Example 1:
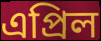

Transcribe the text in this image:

এপ্ৰিল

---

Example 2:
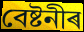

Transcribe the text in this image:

বেষ্টনীৰ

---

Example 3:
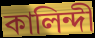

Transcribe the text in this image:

কালিন্দী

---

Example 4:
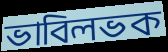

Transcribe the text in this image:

ভাবিলভক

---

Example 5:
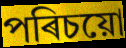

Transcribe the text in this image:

পৰিচয়ো